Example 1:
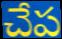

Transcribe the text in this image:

చేప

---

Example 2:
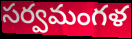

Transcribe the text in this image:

సర్వమంగళ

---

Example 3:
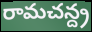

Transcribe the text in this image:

రామచన్ద్ర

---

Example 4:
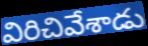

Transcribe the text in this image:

విరిచివేశాడు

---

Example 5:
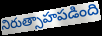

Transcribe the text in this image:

నిరుత్సాహపడింది